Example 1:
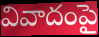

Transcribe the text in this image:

వివాదంపై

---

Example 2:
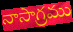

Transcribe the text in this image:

నాసాగ్రము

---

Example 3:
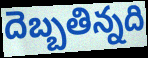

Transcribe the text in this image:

దెబ్బతిన్నది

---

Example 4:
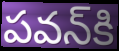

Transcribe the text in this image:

పవన్‌కి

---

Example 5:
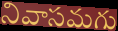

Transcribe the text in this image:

నివాసమగు